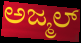
ಅಜ್ಮಲ್